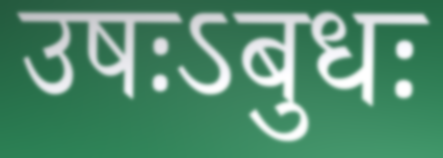
उषःऽबुधः